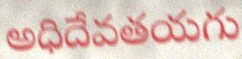
అధిదేవతయగు